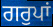
ਗਰੁਪਾਂ